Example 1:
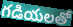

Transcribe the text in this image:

గడియలతో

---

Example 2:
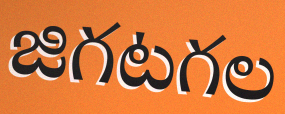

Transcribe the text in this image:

జిగటగల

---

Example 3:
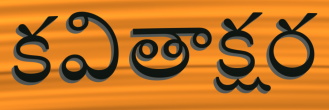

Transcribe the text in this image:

కవితాక్షర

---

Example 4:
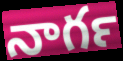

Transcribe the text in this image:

నాగర్‍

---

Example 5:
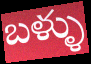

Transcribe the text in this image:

బళ్ళు